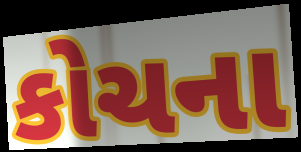
કોચના